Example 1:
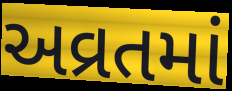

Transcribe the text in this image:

અવ્રતમાં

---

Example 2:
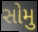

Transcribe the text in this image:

સોમુ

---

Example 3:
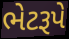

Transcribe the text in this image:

ભેટરૂપે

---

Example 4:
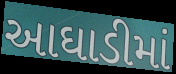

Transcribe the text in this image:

આઘાડીમાં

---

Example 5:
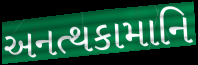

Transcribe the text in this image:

અનત્થકામાનિ